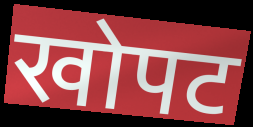
खोपट